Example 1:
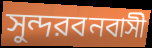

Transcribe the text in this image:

সুন্দরবনবাসী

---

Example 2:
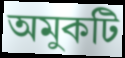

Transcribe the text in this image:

অমুকটি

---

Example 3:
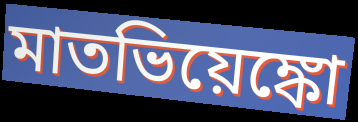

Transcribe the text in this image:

মাতভিয়েঙ্কো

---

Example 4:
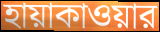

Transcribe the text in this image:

হায়াকাওয়ার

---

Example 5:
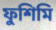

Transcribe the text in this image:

ফুশিমি